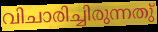
വിചാരിച്ചിരുന്നതു്